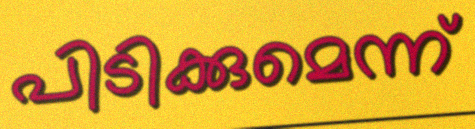
പിടിക്കുമെന്ന്